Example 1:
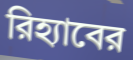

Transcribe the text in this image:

রিহ্যাবের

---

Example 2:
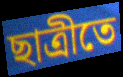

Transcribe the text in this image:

ছাত্রীতে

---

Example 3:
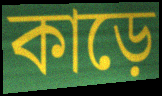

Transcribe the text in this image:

কাড়ে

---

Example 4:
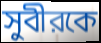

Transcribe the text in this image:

সুবীরকে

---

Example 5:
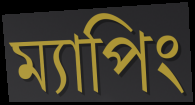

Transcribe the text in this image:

ম্যাপিং